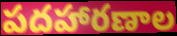
పదహారణాల